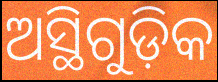
ଅସ୍ଥିଗୁଡ଼ିକ